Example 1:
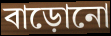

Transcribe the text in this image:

বাড়োনো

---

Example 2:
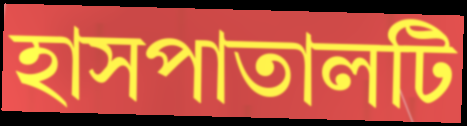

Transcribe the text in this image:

হাসপাতালটি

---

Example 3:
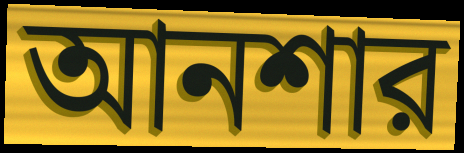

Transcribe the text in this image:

আনশার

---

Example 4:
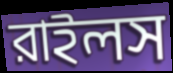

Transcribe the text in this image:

রাইলস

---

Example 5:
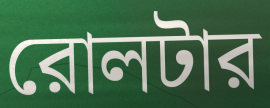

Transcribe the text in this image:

রোলটার